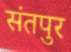
संतपुर